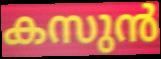
കസുൻ